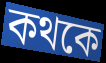
কথকে